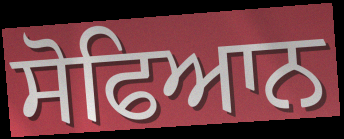
ਸੋਫਿਆਨ